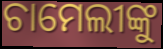
ଚାମେଲୀଙ୍କୁ